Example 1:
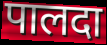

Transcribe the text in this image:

पालदा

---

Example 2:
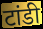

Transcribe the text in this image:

टांडी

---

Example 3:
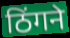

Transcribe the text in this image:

ठिंगने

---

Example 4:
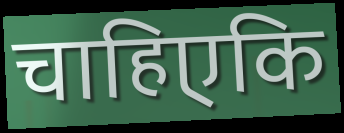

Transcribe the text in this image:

चाहिएकि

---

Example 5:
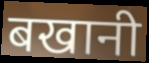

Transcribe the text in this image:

बखानी